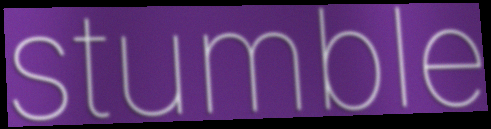
stumble